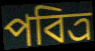
পবিত্র